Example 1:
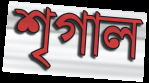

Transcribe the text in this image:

শৃগাল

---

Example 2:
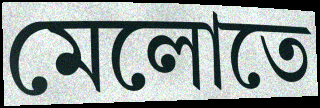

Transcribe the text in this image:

মেলোতে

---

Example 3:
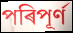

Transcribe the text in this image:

পৰিপূৰ্ণ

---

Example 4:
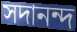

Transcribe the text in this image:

সদানন্দ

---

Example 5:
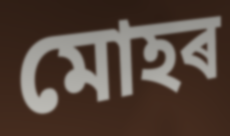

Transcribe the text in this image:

মোহৰ